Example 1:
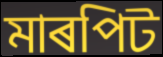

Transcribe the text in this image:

মাৰপিট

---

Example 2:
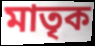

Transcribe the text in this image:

মাতৃক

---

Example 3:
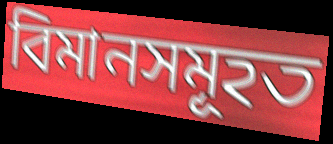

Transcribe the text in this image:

বিমানসমূহত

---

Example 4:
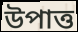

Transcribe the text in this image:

উপাত্ত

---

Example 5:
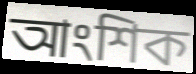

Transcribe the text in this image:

আংশিক